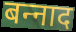
बन्नाद